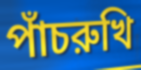
পাঁচরুখি